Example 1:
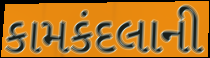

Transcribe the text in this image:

કામકંદલાની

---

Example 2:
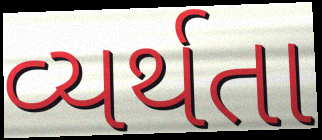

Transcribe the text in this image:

વ્યર્થતા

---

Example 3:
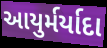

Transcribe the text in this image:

આયુર્મર્યાદા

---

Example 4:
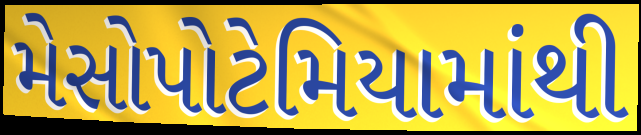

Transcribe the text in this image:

મેસોપોટેમિયામાંથી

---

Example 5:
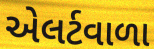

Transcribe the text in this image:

એલર્ટવાળા